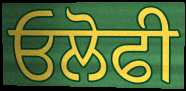
ਓਲੋਫੀ